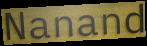
Nanand